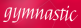
gymnastic